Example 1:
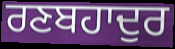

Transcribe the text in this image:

ਰਣਬਹਾਦੁਰ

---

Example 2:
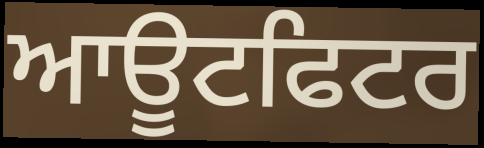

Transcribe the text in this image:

ਆਊਟਫਿਟਰ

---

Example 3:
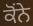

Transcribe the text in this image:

ਕੋਂਨੇ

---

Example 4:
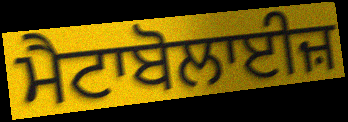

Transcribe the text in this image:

ਮੈਟਾਬੋਲਾਈਜ਼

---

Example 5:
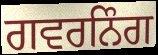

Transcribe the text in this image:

ਗਵਰਨਿੰਗ